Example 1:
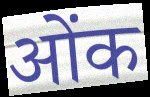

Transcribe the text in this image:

ओंक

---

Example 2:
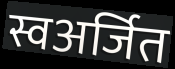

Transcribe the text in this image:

स्वअर्जित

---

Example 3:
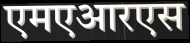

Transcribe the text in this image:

एमएआरएस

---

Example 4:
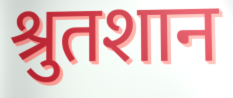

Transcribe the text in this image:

श्रुतशान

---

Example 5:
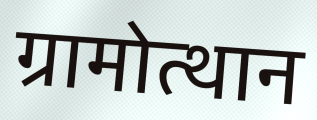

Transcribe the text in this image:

ग्रामोत्थान